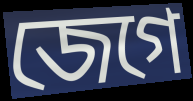
জেগে